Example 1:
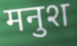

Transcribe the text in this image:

मनुश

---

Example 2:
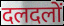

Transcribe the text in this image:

दलदलों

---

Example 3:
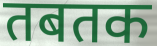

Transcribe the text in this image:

तबतक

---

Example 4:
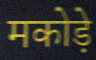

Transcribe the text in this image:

मकोड़े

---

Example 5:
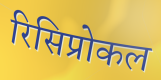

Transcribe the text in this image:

रिसिप्रोकल